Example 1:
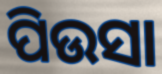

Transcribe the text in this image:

ପିଉସା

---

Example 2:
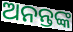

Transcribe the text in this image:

ଅନନ୍ତଙ୍କ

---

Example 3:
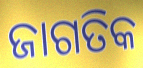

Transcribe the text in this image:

ଜାଗତିକ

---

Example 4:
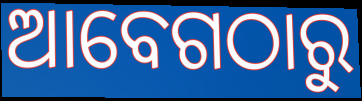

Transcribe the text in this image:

ଆବେଗଠାରୁ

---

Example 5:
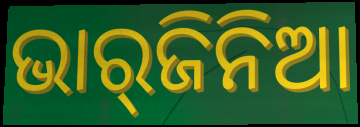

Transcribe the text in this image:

ଭାର୍‌ଜିନିଆ